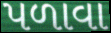
પળાવા